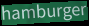
hamburger